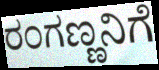
ರಂಗಣ್ಣನಿಗೆ